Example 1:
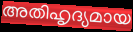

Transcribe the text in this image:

അതിഹൃദ്യമായ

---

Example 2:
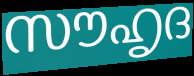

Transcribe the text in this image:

സൗഹൃദ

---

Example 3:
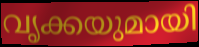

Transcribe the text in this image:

വൃക്കയുമായി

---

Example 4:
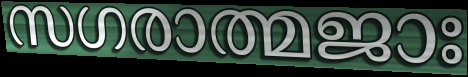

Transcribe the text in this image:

സഗരാത്മജാഃ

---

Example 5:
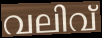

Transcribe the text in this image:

വലിവ്